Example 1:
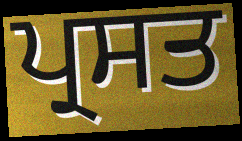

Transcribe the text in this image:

ਪ੍ਰਸਤ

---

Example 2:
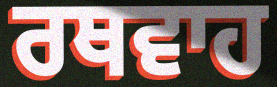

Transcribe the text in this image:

ਰਥਵਾਹ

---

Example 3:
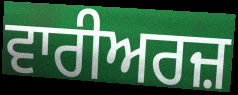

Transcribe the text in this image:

ਵਾਰੀਅਰਜ਼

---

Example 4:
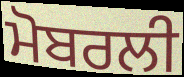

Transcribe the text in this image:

ਮੋਬਰਲੀ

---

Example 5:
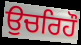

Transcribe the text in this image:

ਉਚਰਿਹੌ